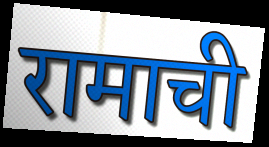
रामाची